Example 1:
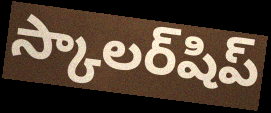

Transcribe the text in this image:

స్కాలర్‌షిప్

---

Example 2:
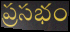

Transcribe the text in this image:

ప్రసభం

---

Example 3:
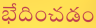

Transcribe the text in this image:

భేదించడం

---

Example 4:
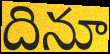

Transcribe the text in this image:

దినూ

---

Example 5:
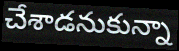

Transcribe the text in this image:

చేశాడనుకున్నా